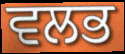
ਵਲਭ